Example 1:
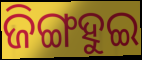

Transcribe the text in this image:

ଜିଙ୍ଗହୁଇ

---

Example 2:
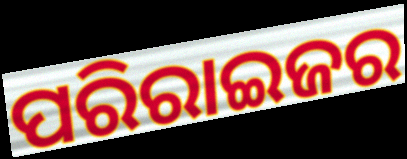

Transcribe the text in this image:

ପରିରାଇଜର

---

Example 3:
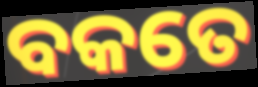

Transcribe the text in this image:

ବକତେ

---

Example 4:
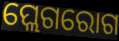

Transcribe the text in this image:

ପ୍ଲେଗରୋଗ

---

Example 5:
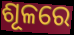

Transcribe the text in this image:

ଶୂଳରେ